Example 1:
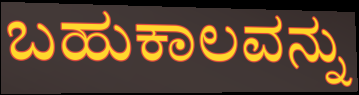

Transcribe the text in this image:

ಬಹುಕಾಲವನ್ನು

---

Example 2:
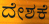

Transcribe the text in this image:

ದೇಶಕೆ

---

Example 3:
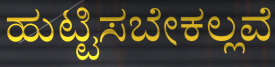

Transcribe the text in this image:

ಹುಟ್ಟಿಸಬೇಕಲ್ಲವೆ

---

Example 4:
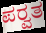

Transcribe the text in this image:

ಪರ್‍ವತ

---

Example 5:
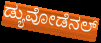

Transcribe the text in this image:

ಡ್ಯುವೋಡೆನಲ್